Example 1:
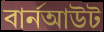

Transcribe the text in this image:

বার্নআউট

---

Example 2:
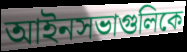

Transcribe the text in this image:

আইনসভাগুলিকে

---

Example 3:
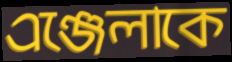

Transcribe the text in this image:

এঞ্জেলাকে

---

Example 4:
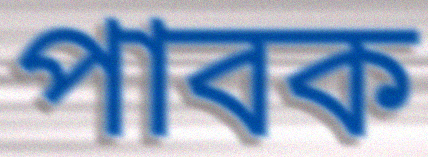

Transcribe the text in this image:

পাবক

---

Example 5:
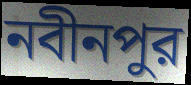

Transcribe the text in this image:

নবীনপুর